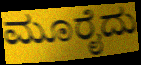
ಮೂರೈದು